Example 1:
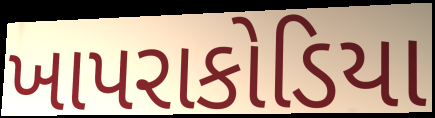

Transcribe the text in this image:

ખાપરાકોડિયા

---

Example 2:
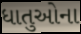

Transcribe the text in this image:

ધાતુઓના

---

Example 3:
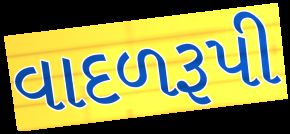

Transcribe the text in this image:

વાદળરૂપી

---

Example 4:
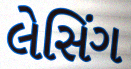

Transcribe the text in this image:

લેસિંગ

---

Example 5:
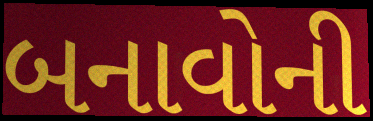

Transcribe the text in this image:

બનાવોની